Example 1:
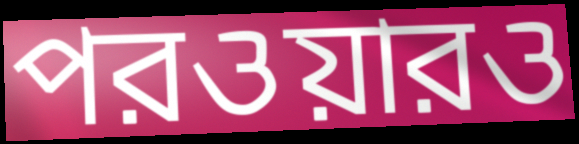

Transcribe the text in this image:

পরওয়ারও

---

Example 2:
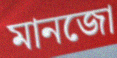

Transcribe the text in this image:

মানজো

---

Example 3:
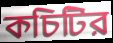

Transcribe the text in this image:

কচিটির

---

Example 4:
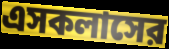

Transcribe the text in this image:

এসকলাসের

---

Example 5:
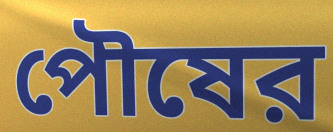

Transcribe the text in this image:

পৌষের